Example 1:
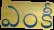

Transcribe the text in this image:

ఎంకీ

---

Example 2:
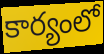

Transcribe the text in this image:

కార్యంలో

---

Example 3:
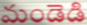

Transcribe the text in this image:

మండెడి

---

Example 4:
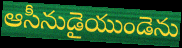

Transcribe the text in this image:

ఆసీనుడైయుండెను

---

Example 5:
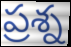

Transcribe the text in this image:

ప్రశ్న